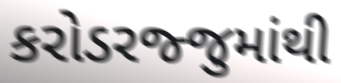
કરોડરજ્જુમાંથી